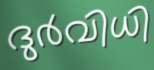
ദുർവിധി